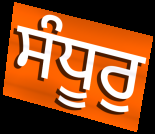
ਸੰਧੂਰੁ